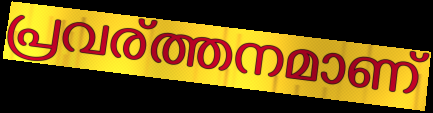
പ്രവര്ത്തനമാണ്